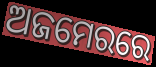
ଅଜମେରରେ